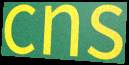
cns